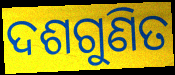
ଦଶଗୁଣିତ